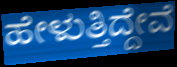
ಹೇಳುತ್ತಿದ್ದೇವೆ